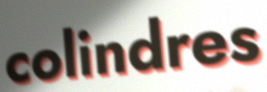
colindres